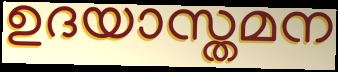
ഉദയാസ്തമന